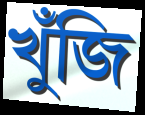
খুঁজি